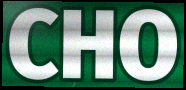
CHO